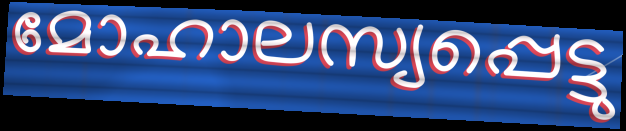
മോഹാലസ്യപ്പെട്ടു